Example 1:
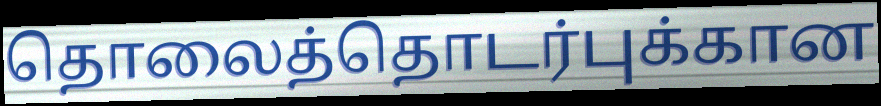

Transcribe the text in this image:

தொலைத்தொடர்புக்கான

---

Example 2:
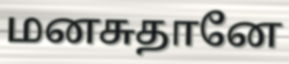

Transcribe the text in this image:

மனசுதானே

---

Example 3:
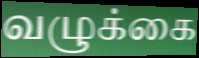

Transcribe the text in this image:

வழுக்கை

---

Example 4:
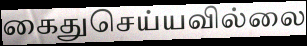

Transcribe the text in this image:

கைதுசெய்யவில்லை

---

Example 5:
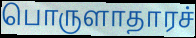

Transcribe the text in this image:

பொருளாதாரச்